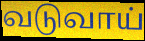
வடுவாய்